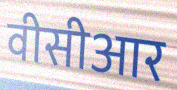
वीसीआर